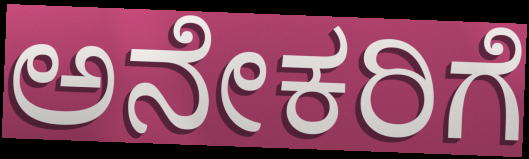
ಅನೇಕರಿಗೆ